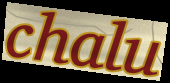
chalu